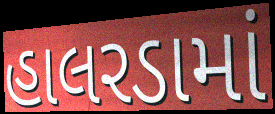
હાલરડામાં